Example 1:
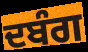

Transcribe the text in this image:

ਦਬੰਗ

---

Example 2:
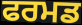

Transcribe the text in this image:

ਫਰਮਡ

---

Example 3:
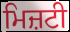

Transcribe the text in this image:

ਮਿਜ਼ਟੀ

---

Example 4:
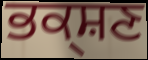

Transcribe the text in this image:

ਭਕ੍ਸ਼ਣ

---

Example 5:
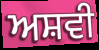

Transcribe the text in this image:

ਅਸ਼ਵੀ